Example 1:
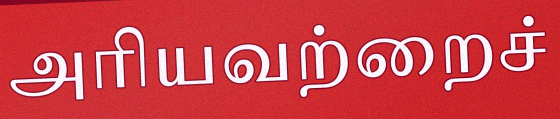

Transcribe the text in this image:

அரியவற்றைச்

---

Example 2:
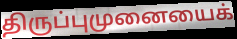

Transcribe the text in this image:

திருப்புமுனையைக்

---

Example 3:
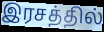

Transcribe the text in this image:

இரசத்தில்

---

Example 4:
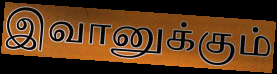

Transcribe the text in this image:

இவானுக்கும்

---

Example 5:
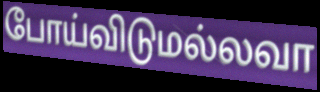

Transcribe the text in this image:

போய்விடுமல்லவா